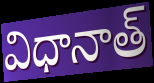
విధానాత్